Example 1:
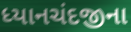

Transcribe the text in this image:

ધ્યાનચંદજીના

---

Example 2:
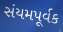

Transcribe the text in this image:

સંયમપૂર્વક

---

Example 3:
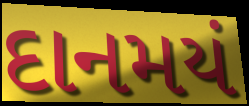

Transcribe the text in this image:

દાનમયં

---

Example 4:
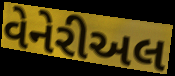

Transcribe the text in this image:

વેનેરીઅલ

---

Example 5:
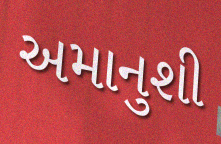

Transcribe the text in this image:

અમાનુશી